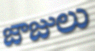
జాజులు